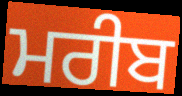
ਮਰੀਬ